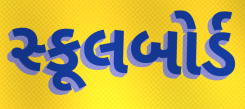
સ્કૂલબોર્ડ